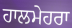
ਹਾਲਮੇਹਰਾ